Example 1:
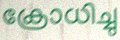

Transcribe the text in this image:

ക്രോധിച്ചു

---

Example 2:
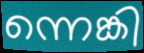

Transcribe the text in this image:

ന്നെങ്കി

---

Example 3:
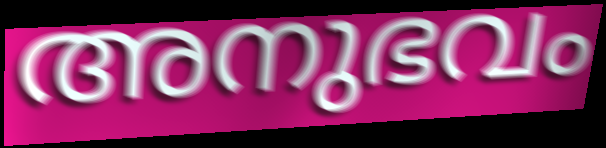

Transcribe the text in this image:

അനുഭവം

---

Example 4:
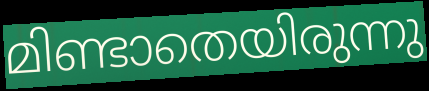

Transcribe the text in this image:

മിണ്ടാതെയിരുന്നു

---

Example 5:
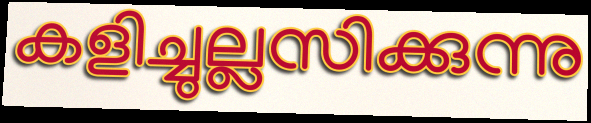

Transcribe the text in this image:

കളിച്ചുല്ലസിക്കുന്നു